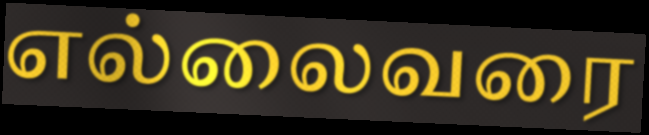
எல்லைவரை